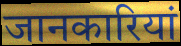
जानकारियां